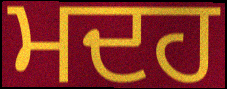
ਮਦਹ